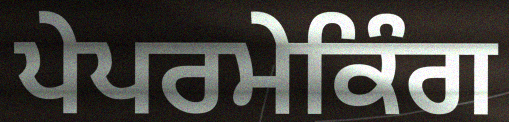
ਪੇਪਰਮੇਕਿੰਗ